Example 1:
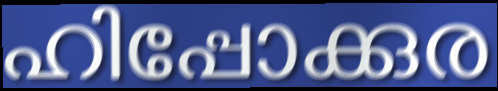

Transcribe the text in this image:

ഹിപ്പോക്കുര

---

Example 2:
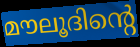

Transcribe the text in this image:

മൗലൂദിന്റെ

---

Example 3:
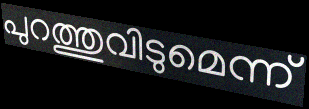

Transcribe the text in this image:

പുറത്തുവിടുമെന്ന്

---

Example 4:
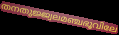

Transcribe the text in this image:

തനതുജ്ജ്വലമഞ്ചഭൂവിലേ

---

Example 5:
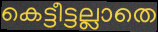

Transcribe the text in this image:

കെട്ടീട്ടല്ലാതെ